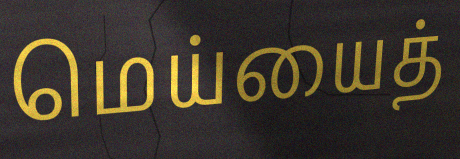
மெய்யைத்